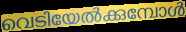
വെടിയേൽക്കുമ്പോൾ